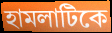
হামলাটিকে